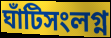
ঘাঁটিসংলগ্ন